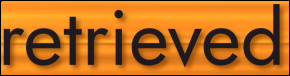
retrieved